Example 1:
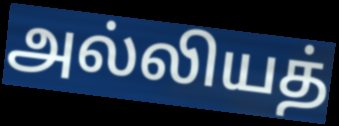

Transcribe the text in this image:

அல்லியத்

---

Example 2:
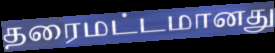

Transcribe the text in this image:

தரைமட்டமானது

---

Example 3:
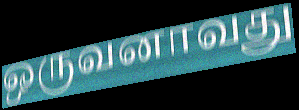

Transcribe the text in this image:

ஒருவனாவது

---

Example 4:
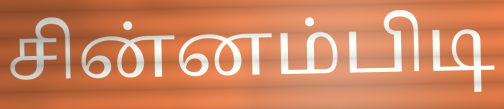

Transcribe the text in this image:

சின்னம்பிடி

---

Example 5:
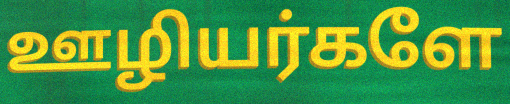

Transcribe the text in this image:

ஊழியர்களே